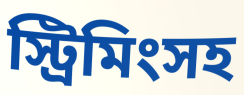
স্ট্রিমিংসহ